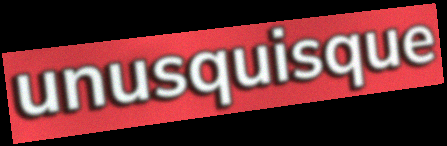
unusquisque